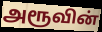
அரூவின்